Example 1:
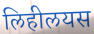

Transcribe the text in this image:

लिहीलयस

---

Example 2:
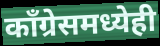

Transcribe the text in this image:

काँग्रेसमध्येही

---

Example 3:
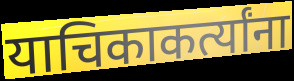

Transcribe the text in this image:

याचिकाकर्त्यांना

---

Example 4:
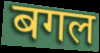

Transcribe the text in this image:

बगल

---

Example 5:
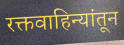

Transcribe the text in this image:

रक्तवाहिन्यांतून